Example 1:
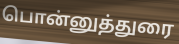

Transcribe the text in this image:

பொன்னுத்துரை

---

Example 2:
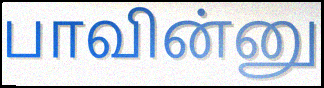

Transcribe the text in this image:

பாவின்னு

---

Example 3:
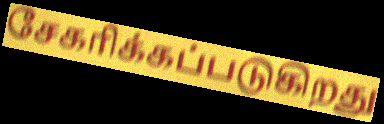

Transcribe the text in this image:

சேகரிக்கப்படுகிறது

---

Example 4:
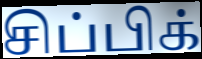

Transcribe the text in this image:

சிப்பிக்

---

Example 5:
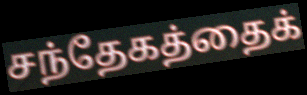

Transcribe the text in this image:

சந்தேகத்தைக்